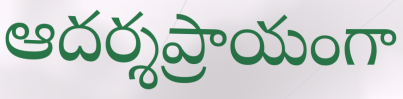
ఆదర్శప్రాయంగా